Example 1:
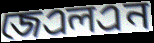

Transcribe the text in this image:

জেএলএন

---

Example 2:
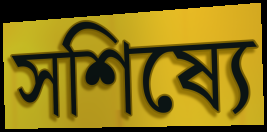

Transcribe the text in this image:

সশিষ্যে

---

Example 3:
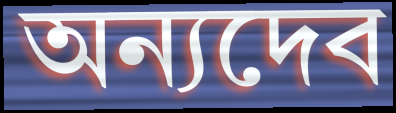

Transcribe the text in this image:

অন্যদেব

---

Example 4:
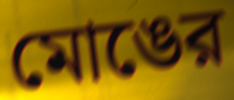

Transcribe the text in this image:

মোঙের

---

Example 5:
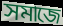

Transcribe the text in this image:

সমাজে